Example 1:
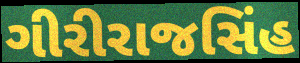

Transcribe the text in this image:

ગીરીરાજસિંહ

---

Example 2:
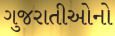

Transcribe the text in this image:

ગુજરાતીઓનો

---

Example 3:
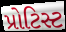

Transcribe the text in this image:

પ્રોટિસ્ટ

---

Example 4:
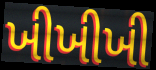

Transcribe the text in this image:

ખીખીખી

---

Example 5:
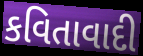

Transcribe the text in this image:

કવિતાવાદી